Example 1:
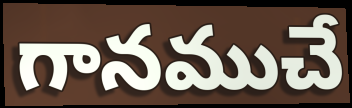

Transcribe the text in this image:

గానముచే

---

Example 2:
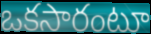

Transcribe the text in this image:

ఒకసారంటూ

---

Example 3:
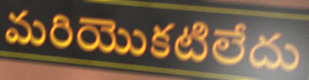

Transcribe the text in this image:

మరియొకటిలేదు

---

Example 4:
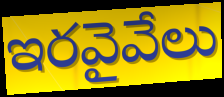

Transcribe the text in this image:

ఇరవైవేలు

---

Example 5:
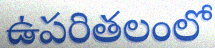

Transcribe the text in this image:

ఉపరితలంలో